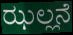
ಝಲ್ಲನೆ